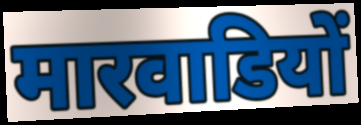
मारवाडियों